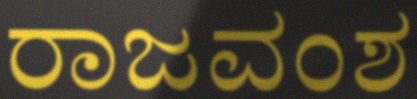
ರಾಜವಂಶ